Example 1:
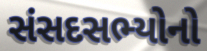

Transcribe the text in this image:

સંસદસભ્યોનો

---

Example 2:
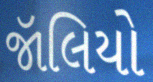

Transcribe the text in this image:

જૉલિયો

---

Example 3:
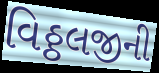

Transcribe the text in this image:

વિઠ્ઠલજીની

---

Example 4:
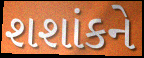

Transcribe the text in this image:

શશાંકને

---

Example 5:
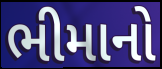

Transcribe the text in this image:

ભીમાનો